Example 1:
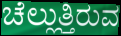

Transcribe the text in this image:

ಚೆಲ್ಲುತ್ತಿರುವ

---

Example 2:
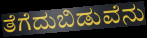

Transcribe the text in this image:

ತೆಗೆದುಬಿಡುವೆನು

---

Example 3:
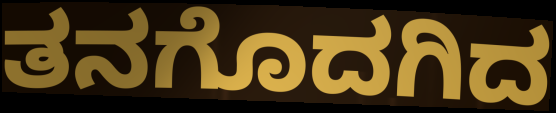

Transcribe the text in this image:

ತನಗೊದಗಿದ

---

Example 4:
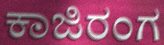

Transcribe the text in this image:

ಕಾಜಿರಂಗ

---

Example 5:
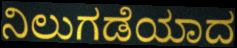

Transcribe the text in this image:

ನಿಲುಗಡೆಯಾದ